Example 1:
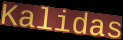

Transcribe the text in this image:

Kalidas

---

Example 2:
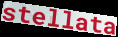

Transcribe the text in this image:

stellata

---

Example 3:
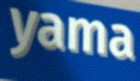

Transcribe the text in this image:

yama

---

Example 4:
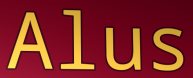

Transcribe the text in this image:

Alus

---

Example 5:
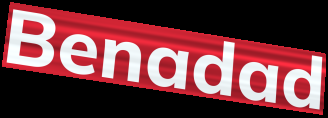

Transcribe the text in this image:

Benadad